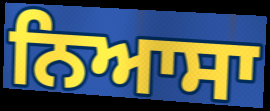
ਨਿਆਸਾ